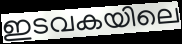
ഇടവകയിലെ